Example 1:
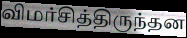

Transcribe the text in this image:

விமர்சித்திருந்தன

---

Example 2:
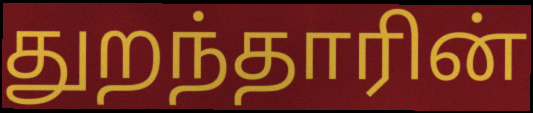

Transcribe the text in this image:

துறந்தாரின்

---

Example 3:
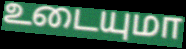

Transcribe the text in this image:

உடையுமா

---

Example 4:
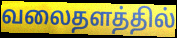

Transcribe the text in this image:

வலைதளத்தில்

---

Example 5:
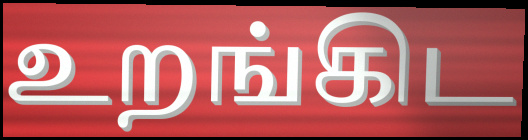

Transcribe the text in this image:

உறங்கிட